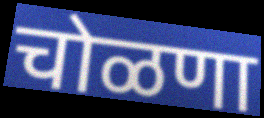
चोळणा